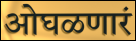
ओघळणारं